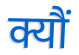
क्यौं